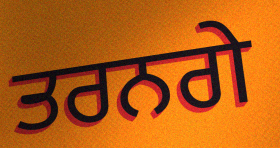
ਤਰਨਗੇ